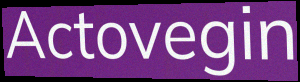
Actovegin